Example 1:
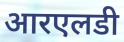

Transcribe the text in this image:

आरएलडी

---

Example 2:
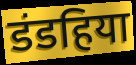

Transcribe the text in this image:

डंडहिया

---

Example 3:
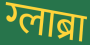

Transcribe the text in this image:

ग्लाब्रा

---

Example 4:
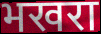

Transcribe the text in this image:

भखरा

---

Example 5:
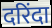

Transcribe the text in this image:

दरिंदा